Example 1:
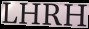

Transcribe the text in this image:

LHRH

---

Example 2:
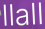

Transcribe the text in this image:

llall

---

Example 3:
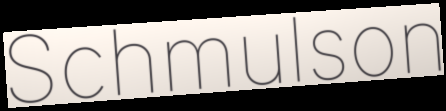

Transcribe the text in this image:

Schmulson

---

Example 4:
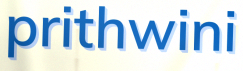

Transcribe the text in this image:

prithwini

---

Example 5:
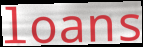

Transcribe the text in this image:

loans